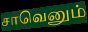
சாவெனும்